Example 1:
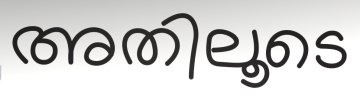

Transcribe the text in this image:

അതിലൂടെ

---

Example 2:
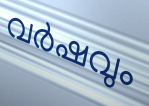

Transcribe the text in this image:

വർഷവും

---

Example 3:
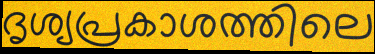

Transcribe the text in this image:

ദൃശ്യപ്രകാശത്തിലെ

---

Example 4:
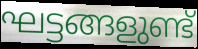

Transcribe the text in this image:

ഘട്ടങ്ങളുണ്ട്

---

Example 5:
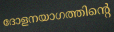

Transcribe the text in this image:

ദോളനയാഗത്തിന്റെ